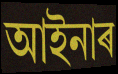
আইনাৰ